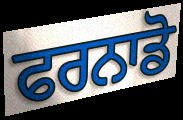
ਫਰਨਾਡੋ